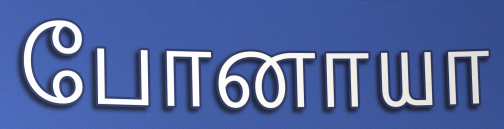
போனாயா